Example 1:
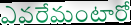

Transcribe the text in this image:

ఎవరేమంటారో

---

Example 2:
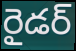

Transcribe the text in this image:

రైడర్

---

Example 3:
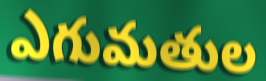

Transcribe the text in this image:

ఎగుమతుల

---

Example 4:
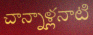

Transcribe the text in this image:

చాన్నాళ్లనాటి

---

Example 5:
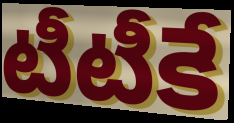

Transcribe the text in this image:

టీటీకే